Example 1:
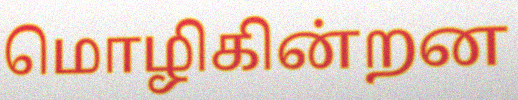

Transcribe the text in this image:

மொழிகின்றன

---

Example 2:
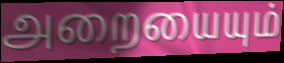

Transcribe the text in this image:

அறையையும்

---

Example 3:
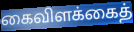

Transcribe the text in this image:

கைவிளக்கைத்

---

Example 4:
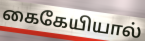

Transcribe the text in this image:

கைகேயியால்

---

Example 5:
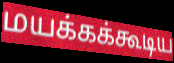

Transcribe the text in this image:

மயக்கக்கூடிய